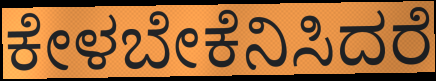
ಕೇಳಬೇಕೆನಿಸಿದರೆ